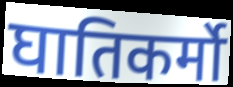
घातिकर्मो